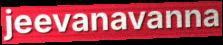
jeevanavanna